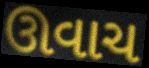
ઊવાચ